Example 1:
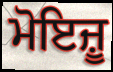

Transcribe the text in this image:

ਮੋਇਜ਼ੂ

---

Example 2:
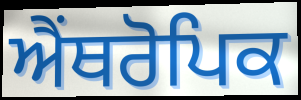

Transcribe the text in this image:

ਐਂਥਰੋਪਿਕ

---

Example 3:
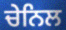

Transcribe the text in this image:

ਚੇਨਿਲ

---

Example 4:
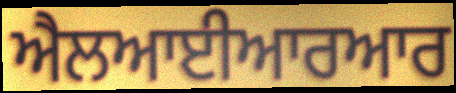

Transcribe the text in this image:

ਐਲਆਈਆਰਆਰ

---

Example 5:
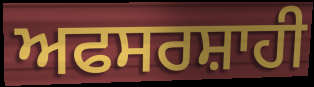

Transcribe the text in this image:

ਅਫਸਰਸ਼ਾਹੀ